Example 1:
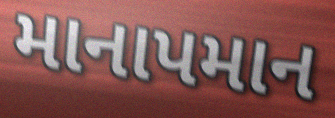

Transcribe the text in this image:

માનાપમાન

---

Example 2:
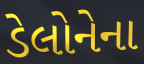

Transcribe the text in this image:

ડેલોનેના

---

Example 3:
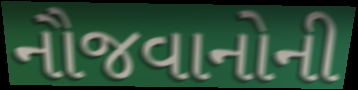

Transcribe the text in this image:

નૌજવાનોની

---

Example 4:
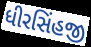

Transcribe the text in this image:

ધીરસિંહજી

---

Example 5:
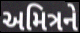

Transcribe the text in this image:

અમિત્રને